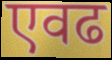
एवढ